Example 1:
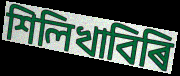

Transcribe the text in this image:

শিলিখাবিৰি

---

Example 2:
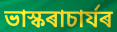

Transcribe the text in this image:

ভাস্কৰাচাৰ্যৰ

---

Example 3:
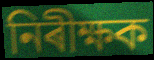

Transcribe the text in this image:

নিৰীক্ষক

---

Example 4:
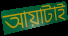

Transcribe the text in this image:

আয়াটাই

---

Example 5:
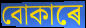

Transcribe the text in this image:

বোকাৰে